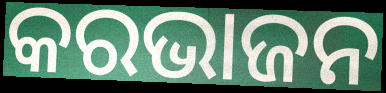
କରଭାଜନ